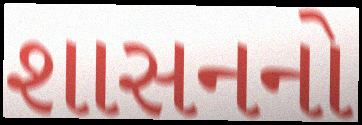
શાસનનો